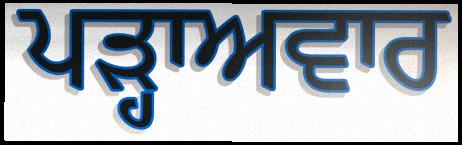
ਪੜ੍ਹਾਅਵਾਰ